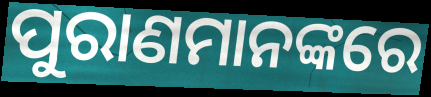
ପୁରାଣମାନଙ୍କରେ